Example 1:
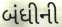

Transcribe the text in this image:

બંધીની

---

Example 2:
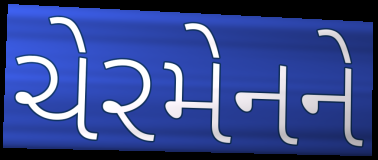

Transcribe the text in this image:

ચેરમેનને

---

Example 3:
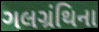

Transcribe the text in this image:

ગલગ્રંથિના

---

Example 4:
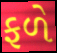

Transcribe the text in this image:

ફળે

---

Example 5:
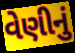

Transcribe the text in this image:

વેણીનું